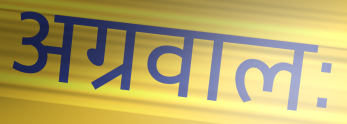
अग्रवालः